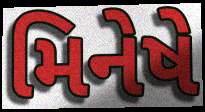
મિનેષે